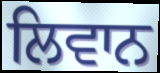
ਲਿਵਾਨ